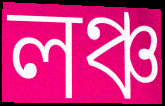
লঞ্চ